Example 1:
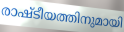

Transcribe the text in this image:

രാഷ്ടീയത്തിനുമായി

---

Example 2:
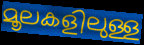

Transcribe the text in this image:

മൂലകളിലുള്ള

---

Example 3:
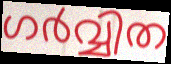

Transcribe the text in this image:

ഗർവ്വിത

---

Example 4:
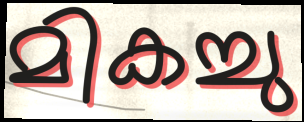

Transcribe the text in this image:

മികച്ചു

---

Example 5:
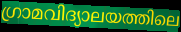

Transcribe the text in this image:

ഗ്രാമവിദ്യാലയത്തിലെ